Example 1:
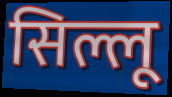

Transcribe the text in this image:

सिल्लू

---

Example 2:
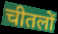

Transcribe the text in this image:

चीतलों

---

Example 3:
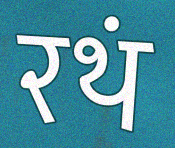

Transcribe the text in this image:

रथं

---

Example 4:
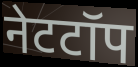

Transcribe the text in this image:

नेटटॉप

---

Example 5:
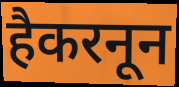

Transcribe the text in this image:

हैकरनून